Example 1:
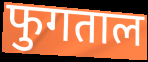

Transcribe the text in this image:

फुगताल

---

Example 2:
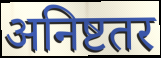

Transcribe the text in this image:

अनिष्टतर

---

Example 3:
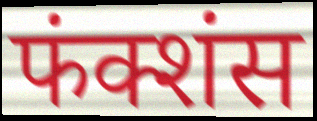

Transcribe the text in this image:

फंक्शंस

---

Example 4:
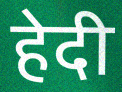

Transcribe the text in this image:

हेदी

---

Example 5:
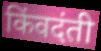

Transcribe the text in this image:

किंवदंती